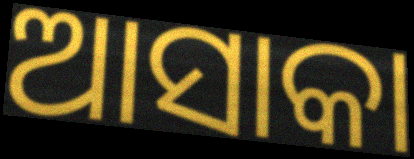
ଆସାକା